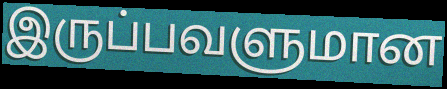
இருப்பவளுமான